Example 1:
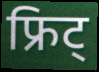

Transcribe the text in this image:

फ्रिट्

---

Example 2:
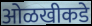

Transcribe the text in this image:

ओळखीकडे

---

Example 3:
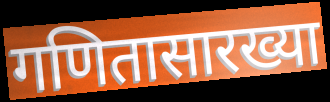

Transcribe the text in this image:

गणितासारख्या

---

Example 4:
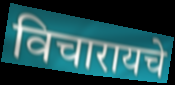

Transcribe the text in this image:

विचारायचे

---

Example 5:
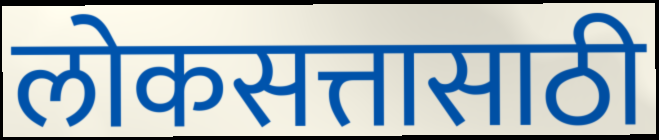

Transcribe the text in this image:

लोकसत्तासाठी